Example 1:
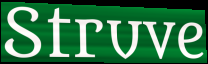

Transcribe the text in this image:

Struve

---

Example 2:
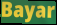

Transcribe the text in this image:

Bayar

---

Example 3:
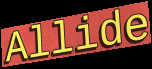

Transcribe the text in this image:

Allide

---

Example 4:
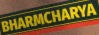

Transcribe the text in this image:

BHARMCHARYA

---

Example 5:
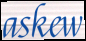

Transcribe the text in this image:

askew